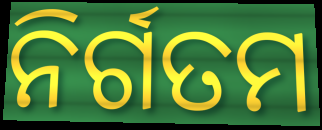
ନିର୍ଗତମ